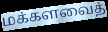
மக்களவைத்